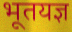
भूतयज्ञ